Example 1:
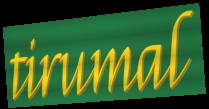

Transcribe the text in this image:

tirumal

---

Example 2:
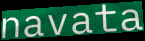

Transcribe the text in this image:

navata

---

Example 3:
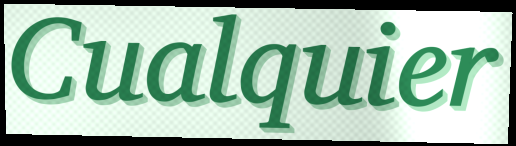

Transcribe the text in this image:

Cualquier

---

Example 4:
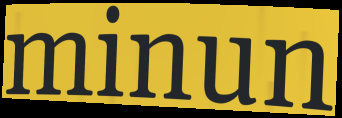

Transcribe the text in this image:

minun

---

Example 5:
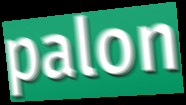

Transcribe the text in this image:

palon